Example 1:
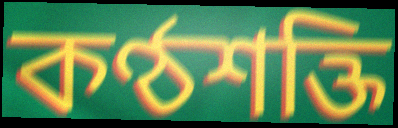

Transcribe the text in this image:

কণ্ঠশক্তি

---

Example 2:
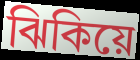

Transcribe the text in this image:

ঝিকিয়ে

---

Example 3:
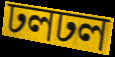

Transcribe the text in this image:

ঢলঢল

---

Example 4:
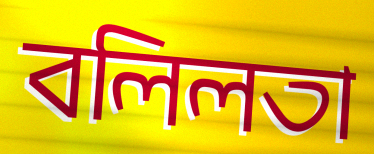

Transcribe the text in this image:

বলিলতা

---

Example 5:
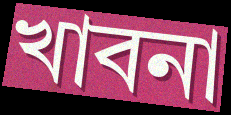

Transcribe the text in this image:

খাবনা